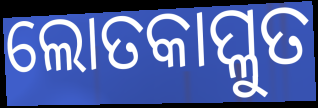
ଲୋତକାପ୍ଳୁତ